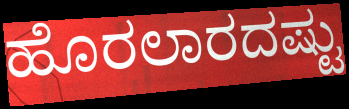
ಹೊರಲಾರದಷ್ಟು